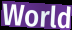
World